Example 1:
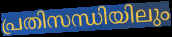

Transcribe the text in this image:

പ്രതിസന്ധിയിലും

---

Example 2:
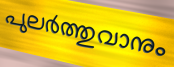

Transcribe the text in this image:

പുലർത്തുവാനും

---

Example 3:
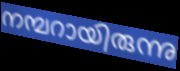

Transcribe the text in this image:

നമ്പറായിരുന്നു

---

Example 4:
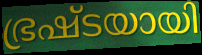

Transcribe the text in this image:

ഭ്രഷ്ടയായി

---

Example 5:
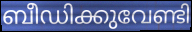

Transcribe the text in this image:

ബീഡിക്കുവേണ്ടി